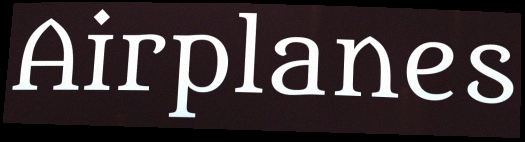
Airplanes